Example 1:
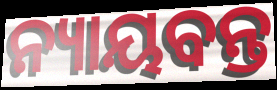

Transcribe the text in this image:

ନ୍ୟାୟବନ୍ତ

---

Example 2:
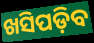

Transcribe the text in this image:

ଖସିପଡ଼ିବ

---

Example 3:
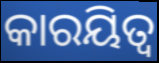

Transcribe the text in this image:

କାରୟିତ୍ୱ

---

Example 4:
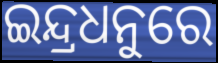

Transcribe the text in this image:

ଇନ୍ଦ୍ରଧନୁରେ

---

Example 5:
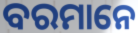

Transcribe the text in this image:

ବରମାନେ